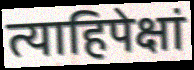
त्याहिपेक्षां